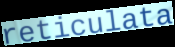
reticulata